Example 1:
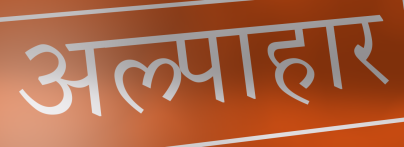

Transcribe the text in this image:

अल्पाहार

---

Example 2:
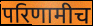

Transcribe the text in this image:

परिणामीच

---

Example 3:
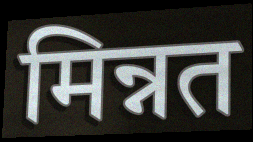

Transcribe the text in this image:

मिन्नत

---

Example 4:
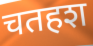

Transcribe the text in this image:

चतहश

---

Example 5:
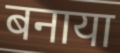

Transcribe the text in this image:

बनाया